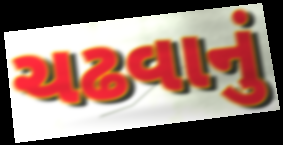
ચઢવાનું